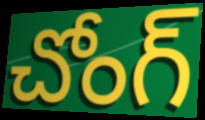
చోంగ్